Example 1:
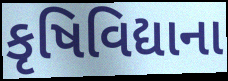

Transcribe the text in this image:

કૃષિવિદ્યાના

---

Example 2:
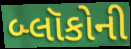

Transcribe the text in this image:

બ્લૉકોની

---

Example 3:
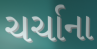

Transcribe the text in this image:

ચર્ચાના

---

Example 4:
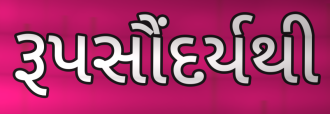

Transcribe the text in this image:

રૂપસૌંદર્યથી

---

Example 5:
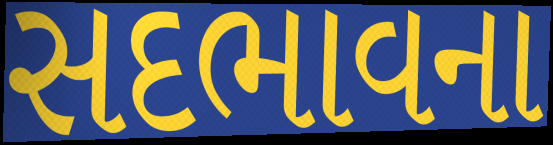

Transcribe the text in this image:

સદભાવના